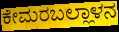
ಕೇಮರಬಲ್ಲಾಳನ